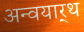
अन्वयार्थ